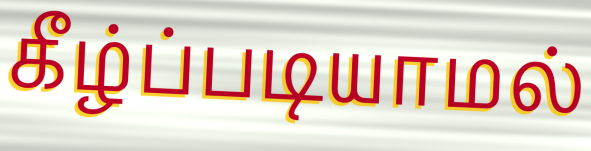
கீழ்ப்படியாமல்